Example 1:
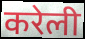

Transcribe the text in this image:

करेली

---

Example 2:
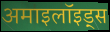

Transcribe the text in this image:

अमाइलॉइड्स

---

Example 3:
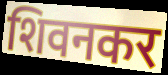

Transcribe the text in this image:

शिवनकर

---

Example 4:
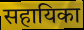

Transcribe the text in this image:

सहायिका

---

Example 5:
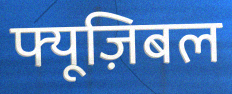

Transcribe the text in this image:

फ्यूज़िबल